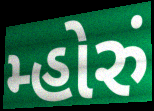
મ્હોરું